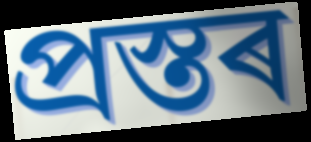
প্ৰস্তৰ